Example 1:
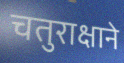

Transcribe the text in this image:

चतुराक्षाने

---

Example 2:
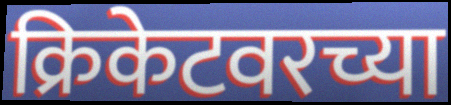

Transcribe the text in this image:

क्रिकेटवरच्या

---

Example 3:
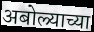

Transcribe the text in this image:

अबोल्याच्या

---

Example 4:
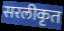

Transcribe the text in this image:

सरलीकृत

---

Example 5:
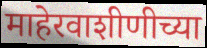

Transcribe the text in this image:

माहेरवाशीणीच्या